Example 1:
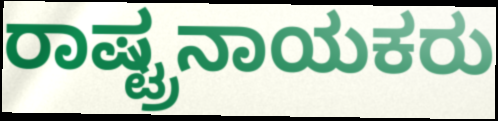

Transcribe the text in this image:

ರಾಷ್ಟ್ರನಾಯಕರು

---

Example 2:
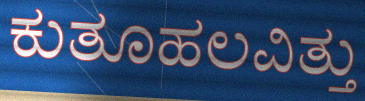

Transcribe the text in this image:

ಕುತೂಹಲವಿತ್ತು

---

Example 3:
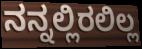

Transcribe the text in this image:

ನನ್ನಲ್ಲಿರಲಿಲ್ಲ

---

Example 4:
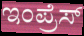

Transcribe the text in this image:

ಇಂಪ್ರೆಸ್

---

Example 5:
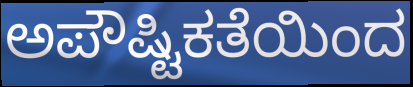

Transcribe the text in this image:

ಅಪೌಷ್ಟಿಕತೆಯಿಂದ